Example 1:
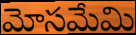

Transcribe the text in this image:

మోసమేమి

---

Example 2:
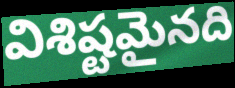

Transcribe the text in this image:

విశిష్టమైనది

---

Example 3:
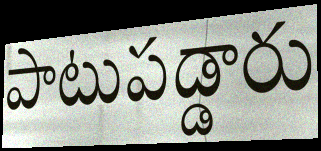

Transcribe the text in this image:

పాటుపడ్డారు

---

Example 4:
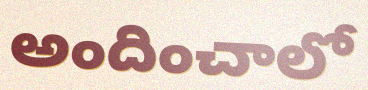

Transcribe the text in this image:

అందించాలో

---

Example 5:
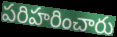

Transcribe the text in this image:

పరిహరించారు